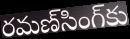
రమణ్‌సింగ్‌కు